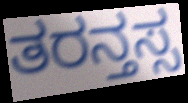
ತರನ್ತಸ್ಸ